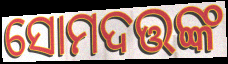
ସୋମଦତ୍ତଙ୍କ